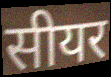
सीयर